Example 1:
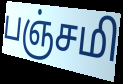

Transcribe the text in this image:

பஞ்சமி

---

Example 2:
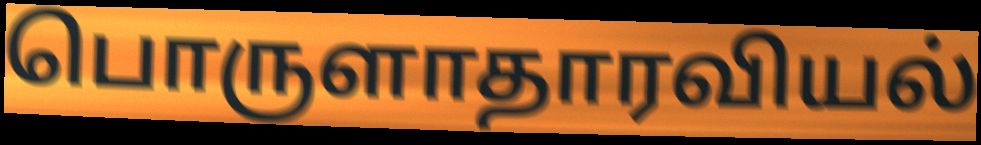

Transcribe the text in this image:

பொருளாதாரவியல்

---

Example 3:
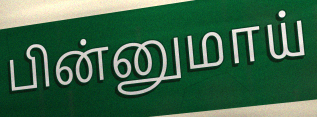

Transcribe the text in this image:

பின்னுமாய்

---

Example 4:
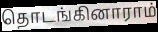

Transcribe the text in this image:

தொடங்கினாராம்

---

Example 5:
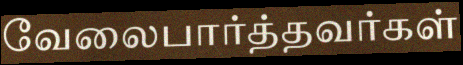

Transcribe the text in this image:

வேலைபார்த்தவர்கள்